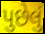
પુછેલું